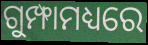
ଗୁମ୍ଫାମଧ୍ୟରେ